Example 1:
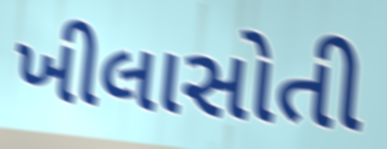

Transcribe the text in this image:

ખીલાસોતી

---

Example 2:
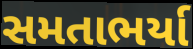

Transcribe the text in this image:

સમતાભર્યા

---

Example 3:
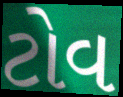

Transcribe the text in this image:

ટોવ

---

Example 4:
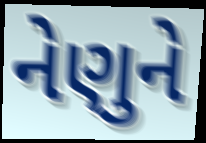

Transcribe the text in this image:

નેણુને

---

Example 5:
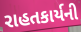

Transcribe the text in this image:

રાહતકાર્યની